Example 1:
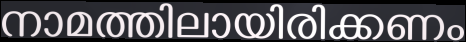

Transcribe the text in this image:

നാമത്തിലായിരിക്കണം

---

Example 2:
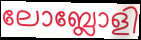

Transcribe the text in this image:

ലോബ്ലോളി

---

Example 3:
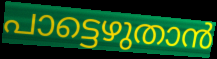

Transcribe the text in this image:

പാട്ടെഴുതാൻ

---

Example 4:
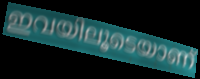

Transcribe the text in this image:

ഇവയിലൂടെയാണ്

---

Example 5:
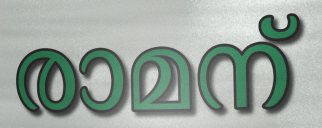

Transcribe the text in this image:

രാമന്